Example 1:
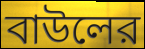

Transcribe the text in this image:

বাউলের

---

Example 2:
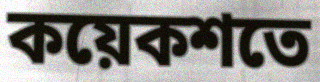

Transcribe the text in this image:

কয়েকশতে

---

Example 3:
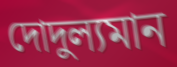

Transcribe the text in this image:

দোদুল্যমান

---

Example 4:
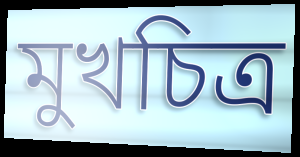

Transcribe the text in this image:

মুখচিত্র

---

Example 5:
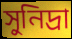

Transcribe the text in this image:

সুনিদ্রা